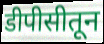
डीपीसीतून